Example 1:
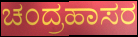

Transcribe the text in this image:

ಚಂದ್ರಹಾಸರ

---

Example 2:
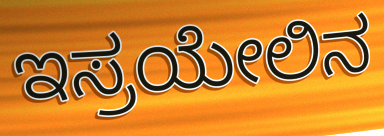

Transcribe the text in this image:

ಇಸ್ರಯೇಲಿನ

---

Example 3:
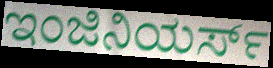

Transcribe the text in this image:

ಇಂಜಿನಿಯರ್ಸ್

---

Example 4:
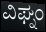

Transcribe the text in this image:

ವಿಘ್ನಂ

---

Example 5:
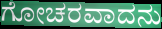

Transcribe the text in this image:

ಗೋಚರವಾದನು